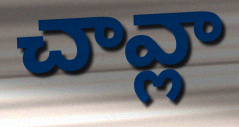
చావ్లా